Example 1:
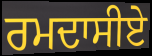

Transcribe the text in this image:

ਰਮਦਾਸੀਏ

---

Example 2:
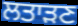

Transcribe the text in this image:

ਲਤਾੜਣ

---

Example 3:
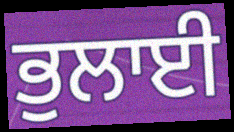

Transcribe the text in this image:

ਭੁਲਾਈ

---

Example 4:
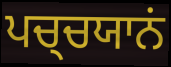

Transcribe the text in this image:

ਪਚ੍ਚਯਾਨਂ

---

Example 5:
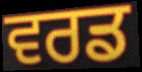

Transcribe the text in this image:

ਵਰਡ